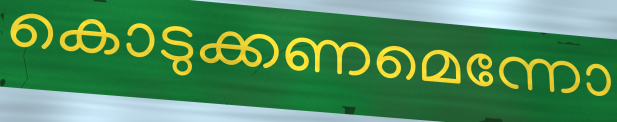
കൊടുക്കണമെന്നോ